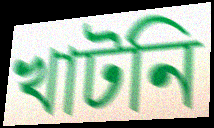
খাটনি